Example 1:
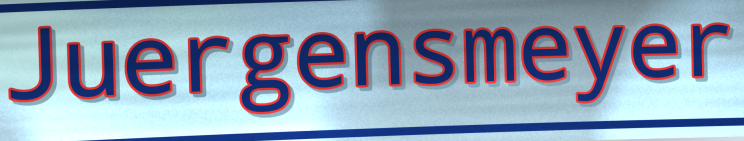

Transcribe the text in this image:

Juergensmeyer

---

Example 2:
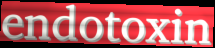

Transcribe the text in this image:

endotoxin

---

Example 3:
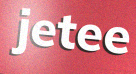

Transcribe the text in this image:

jetee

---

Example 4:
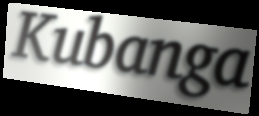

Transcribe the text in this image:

Kubanga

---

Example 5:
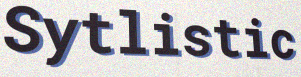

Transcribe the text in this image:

Sytlistic